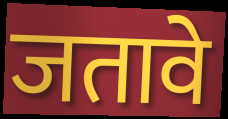
जतावे